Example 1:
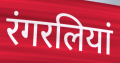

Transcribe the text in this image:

रंगरलियां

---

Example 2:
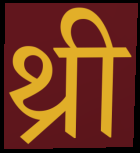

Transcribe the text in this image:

थ्री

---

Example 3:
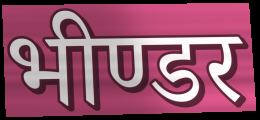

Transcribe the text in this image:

भीण्डर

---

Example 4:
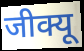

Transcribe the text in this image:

जीक्यू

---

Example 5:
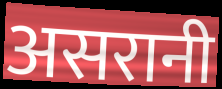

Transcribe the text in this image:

असरानी